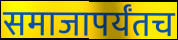
समाजापर्यंतच